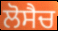
ਲੋਸੈਚ